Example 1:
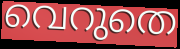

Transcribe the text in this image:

വെറുതെ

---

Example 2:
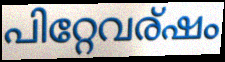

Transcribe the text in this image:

പിറ്റേവര്ഷം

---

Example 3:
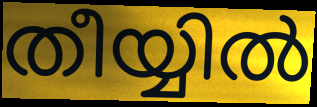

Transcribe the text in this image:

തീയ്യിൽ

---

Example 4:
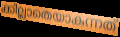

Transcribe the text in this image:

ക്കില്ലാതെയാകുന്നത്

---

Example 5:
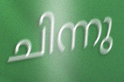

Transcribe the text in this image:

ചിന്നു